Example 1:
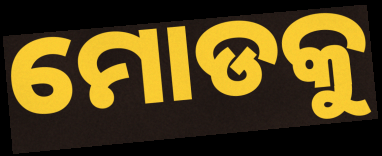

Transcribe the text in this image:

ମୋଡକୁ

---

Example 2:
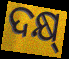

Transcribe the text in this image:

ଦକ୍ଷ୍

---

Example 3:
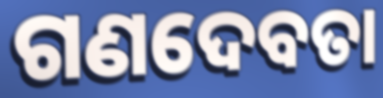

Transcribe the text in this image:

ଗଣଦେବତା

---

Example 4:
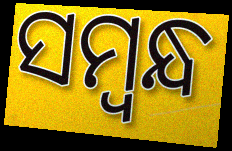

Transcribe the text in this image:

ସମ୍ବନ୍ଧ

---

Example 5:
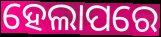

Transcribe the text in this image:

ହେଲାପରେ